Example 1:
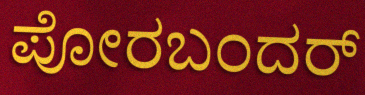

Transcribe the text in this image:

ಪೋರಬಂದರ್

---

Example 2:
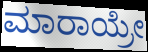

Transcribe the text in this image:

ಮಾರಾಯ್ರೇ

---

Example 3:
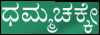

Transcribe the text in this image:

ಧಮ್ಮಚಕ್ಕೇ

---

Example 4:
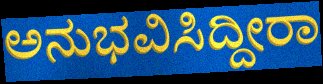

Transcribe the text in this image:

ಅನುಭವಿಸಿದ್ದೀರಾ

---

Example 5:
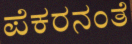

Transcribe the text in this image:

ಪೆಕರನಂತೆ